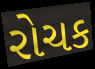
રોચક